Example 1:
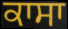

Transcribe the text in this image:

ਕਾਸਾ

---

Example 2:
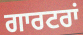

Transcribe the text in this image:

ਗਾਰਟਰਾਂ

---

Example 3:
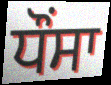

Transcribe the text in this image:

ਧੌਂਸਾ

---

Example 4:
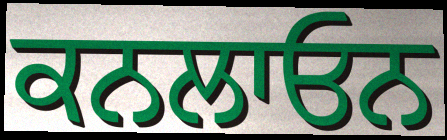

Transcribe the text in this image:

ਕਨਲਾਓਨ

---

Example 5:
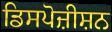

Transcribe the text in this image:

ਡਿਸਪੋਜ਼ੀਸ਼ਨ